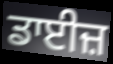
ਡਾਈਜ਼